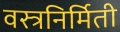
वस्त्रनिर्मिती